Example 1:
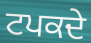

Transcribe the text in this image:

ਟਪਕਦੇ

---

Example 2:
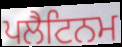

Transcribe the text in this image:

ਪਲੈਟਿਨਮ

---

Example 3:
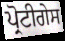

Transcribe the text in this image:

ਪ੍ਰੋਟੀਗੇਸ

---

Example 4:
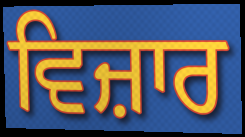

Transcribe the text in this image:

ਵਿਜ਼ਾਰ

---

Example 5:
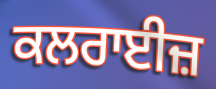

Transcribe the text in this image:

ਕਲਰਾਈਜ਼